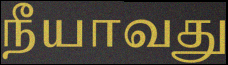
நீயாவது